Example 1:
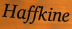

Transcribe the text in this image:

Haffkine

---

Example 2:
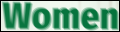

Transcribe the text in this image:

Women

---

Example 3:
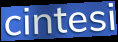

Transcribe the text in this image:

cintesi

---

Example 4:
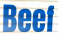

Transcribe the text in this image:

Beef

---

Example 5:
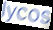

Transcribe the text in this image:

lycos